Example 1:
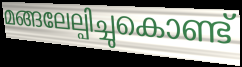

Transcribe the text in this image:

മങ്ങലേല്പിച്ചുകൊണ്ട്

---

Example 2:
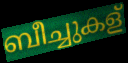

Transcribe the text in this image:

ബീച്ചുകള്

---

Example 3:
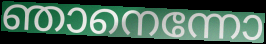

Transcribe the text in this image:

ഞാനെന്നോ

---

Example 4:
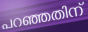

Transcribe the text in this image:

പറഞ്ഞതിന്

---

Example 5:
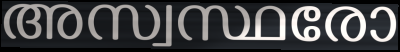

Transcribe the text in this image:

അസ്വസ്ഥരോ